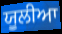
ਯੂਲੀਆ